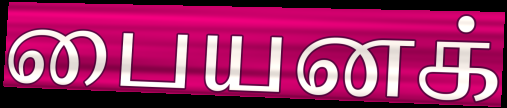
பையனக்